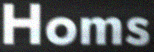
Homs